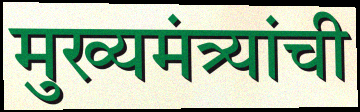
मुख्यमंत्र्यांची